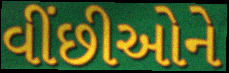
વીંછીઓને